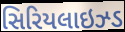
સિરિયલાઇઝ્ડ